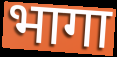
भागा